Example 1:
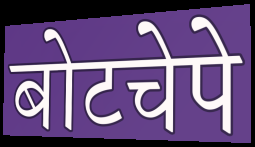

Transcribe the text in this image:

बोटचेपे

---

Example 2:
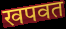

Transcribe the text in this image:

खपवत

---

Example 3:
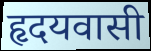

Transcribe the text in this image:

हृदयवासी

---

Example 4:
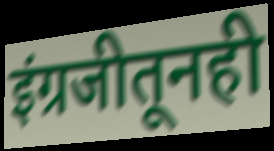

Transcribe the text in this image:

इंग्रजीतूनही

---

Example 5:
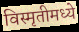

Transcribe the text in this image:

विस्मृतीमध्ये